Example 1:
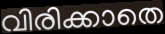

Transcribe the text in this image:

വിരിക്കാതെ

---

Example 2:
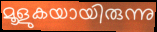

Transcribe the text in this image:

മൂളുകയായിരുന്നു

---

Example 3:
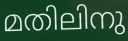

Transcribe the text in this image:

മതിലിനു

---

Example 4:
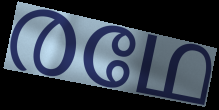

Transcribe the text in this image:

രഥേ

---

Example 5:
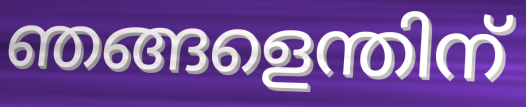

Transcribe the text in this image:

ഞങ്ങളെന്തിന്